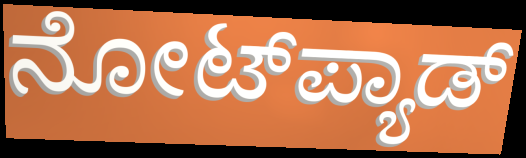
ನೋಟ್‌ಪ್ಯಾಡ್